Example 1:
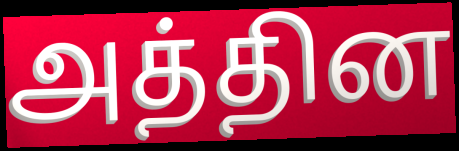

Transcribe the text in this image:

அத்தின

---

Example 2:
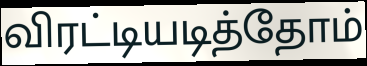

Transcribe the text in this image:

விரட்டியடித்தோம்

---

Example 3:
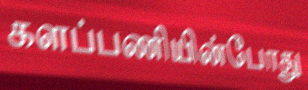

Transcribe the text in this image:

களப்பணியின்போது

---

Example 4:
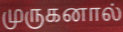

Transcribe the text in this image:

முருகனால்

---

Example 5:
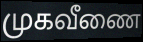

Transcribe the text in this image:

முகவீணை